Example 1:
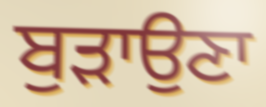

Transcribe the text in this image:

ਬੁੜਾਉਣਾ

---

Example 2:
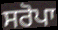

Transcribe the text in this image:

ਸਰੋਪਾ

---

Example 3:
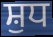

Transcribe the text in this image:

ਸ਼ੁਧ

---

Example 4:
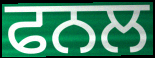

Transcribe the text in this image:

ਫਨਲ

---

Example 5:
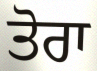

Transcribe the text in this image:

ਤੋਰਾ